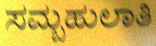
ಸಮ್ಬಹುಲಾತಿ